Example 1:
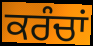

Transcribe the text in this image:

ਕਰੰਚਾਂ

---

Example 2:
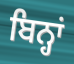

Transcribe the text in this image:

ਬਿਨ੍ਹਾਂ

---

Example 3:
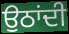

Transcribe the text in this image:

ਉਠਾਂਦੀ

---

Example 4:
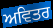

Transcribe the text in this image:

ਅਵਿਤਰ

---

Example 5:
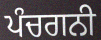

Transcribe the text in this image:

ਪੰਚਗਨੀ